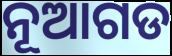
ନୂଆଗଡ